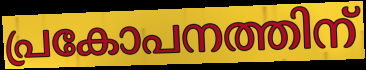
പ്രകോപനത്തിന്